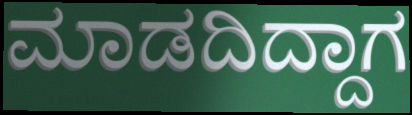
ಮಾಡದಿದ್ದಾಗ